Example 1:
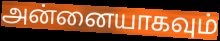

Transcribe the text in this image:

அன்னையாகவும்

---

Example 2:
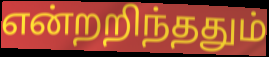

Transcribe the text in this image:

என்றறிந்ததும்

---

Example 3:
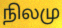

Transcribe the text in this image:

நிலமு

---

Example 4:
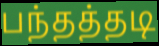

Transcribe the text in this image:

பந்தத்தடி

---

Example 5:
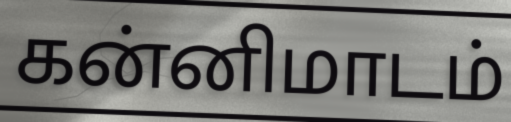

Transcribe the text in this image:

கன்னிமாடம்